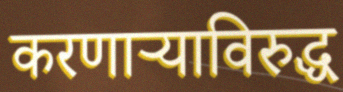
करणाऱ्याविरुद्ध